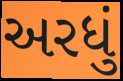
અરધું